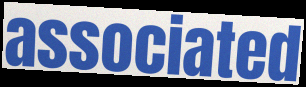
associated